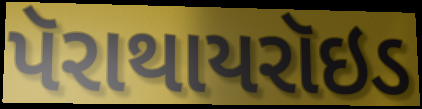
પૅરાથાયરૉઇડ